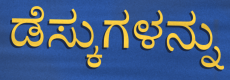
ಡೆಸ್ಕುಗಳನ್ನು